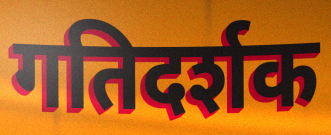
गतिदर्शक